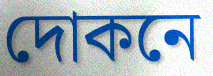
দোকনে